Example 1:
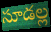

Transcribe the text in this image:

సూడల్ల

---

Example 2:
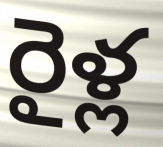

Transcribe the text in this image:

రైళ్ల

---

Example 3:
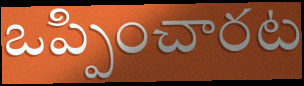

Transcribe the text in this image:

ఒప్పించారట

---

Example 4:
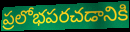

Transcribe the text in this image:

ప్రలోభపరచడానికి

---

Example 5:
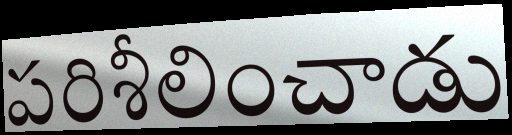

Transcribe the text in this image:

పరిశీలించాడు